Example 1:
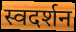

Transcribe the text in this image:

स्वदर्शन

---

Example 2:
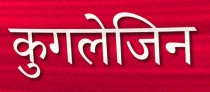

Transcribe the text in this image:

कुगलेजिन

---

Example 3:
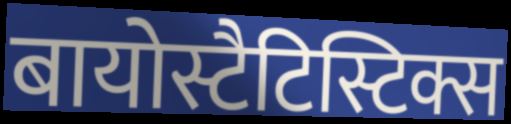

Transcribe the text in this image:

बायोस्टैटिस्टिक्स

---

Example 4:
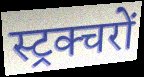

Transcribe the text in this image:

स्ट्रक्चरों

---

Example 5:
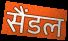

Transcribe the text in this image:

सैंडल